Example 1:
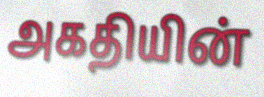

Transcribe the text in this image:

அகதியின்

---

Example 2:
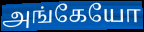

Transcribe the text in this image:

அங்கேயோ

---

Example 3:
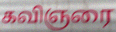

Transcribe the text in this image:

கவிஞரை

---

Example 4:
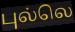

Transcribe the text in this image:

புல்லெ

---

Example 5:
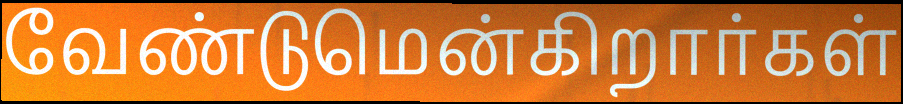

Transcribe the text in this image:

வேண்டுமென்கிறார்கள்